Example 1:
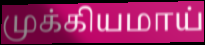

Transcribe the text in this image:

முக்கியமாய்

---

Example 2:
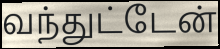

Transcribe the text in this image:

வந்துட்டேன்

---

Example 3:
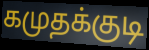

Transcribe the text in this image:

கமுதக்குடி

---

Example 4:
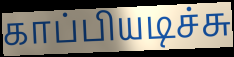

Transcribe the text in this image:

காப்பியடிச்சு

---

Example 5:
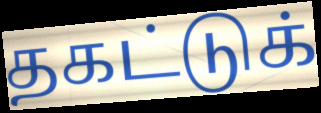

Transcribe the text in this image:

தகட்டுக்